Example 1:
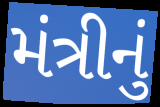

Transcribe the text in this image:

મંત્રીનું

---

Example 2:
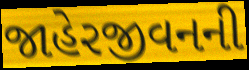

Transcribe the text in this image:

જાહેરજીવનની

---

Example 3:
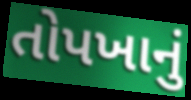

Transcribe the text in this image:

તોપખાનું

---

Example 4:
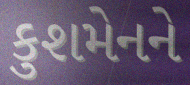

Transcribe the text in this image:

કુશમેનને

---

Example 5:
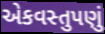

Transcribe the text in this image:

એકવસ્તુપણું